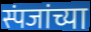
स्पंजांच्या